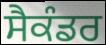
ਸੈਕੰਡਰ